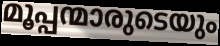
മൂപ്പന്മാരുടെയും